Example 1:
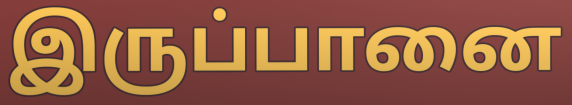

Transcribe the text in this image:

இருப்பானை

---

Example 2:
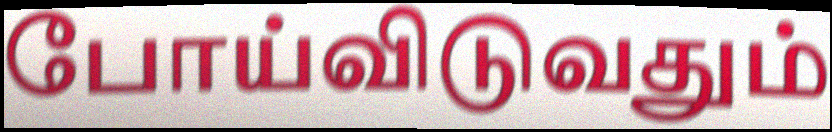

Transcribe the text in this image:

போய்விடுவதும்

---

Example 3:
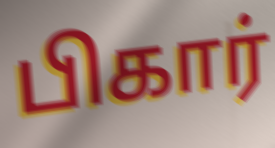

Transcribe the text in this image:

பிகார்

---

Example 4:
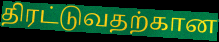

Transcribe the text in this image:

திரட்டுவதற்கான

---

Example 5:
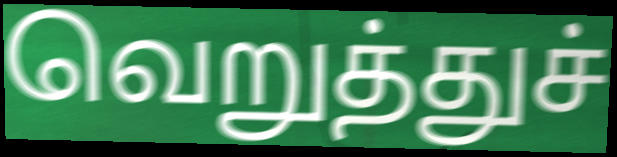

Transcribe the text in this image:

வெறுத்துச்